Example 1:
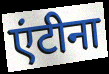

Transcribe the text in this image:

एंटीना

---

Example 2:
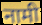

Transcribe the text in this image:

नामी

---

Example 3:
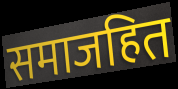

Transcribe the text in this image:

समाजहित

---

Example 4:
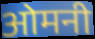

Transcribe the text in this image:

ओमनी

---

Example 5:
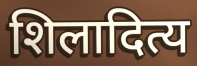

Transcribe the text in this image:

शिलादित्य